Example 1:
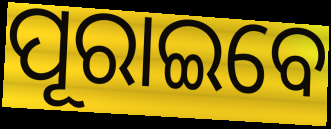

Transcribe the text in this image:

ପୂରାଇବେ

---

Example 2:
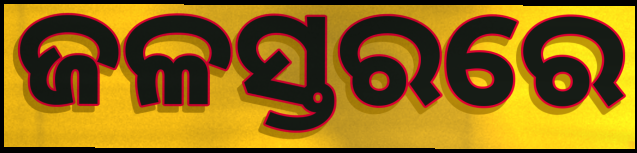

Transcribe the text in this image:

ଜଳସ୍ତରରେ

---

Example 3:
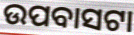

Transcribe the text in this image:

ଉପବାସଟା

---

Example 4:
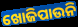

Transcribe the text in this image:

ଖୋଜିପାଉନି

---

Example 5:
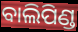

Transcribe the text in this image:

ବାଲିପିଣ୍ଡ